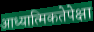
आध्यात्मिकतेपेक्षा